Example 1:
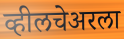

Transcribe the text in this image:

व्हीलचेअरला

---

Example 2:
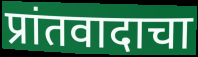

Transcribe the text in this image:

प्रांतवादाचा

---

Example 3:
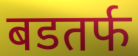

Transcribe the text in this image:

बडतर्फ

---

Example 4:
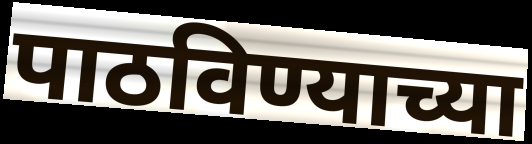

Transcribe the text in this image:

पाठविण्याच्या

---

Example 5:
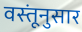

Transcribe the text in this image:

वस्तूंनुसार